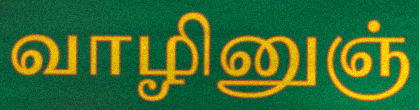
வாழினுஞ்